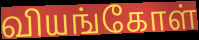
வியங்கோள்